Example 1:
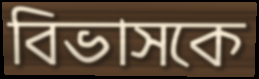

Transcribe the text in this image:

বিভাসকে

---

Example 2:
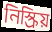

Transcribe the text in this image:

নিস্ক্রিয়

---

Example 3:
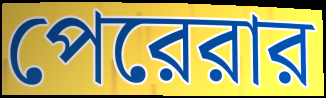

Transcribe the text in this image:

পেরেরার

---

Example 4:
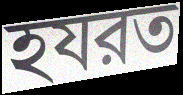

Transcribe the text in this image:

হযরত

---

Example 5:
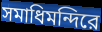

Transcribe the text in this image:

সমাধিমন্দিরে